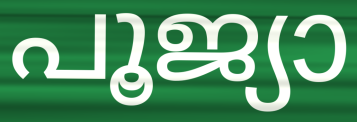
പൂജ്യാ